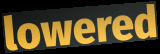
lowered